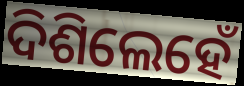
ଦିଶିଲେହେଁ